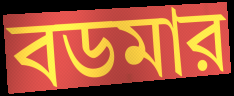
বডমার